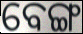
ବେଙ୍ଗ